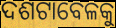
ଦଶଟାବେଳକୁ